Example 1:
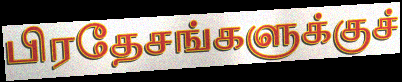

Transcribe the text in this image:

பிரதேசங்களுக்குச்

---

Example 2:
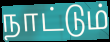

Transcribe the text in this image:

நாட்டும்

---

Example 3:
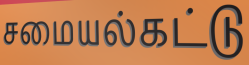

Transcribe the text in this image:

சமையல்கட்டு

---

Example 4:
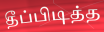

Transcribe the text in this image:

தீப்பிடித்த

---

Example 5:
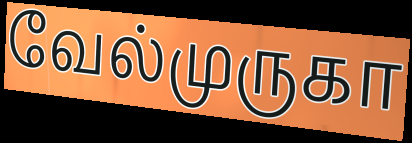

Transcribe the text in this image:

வேல்முருகா